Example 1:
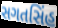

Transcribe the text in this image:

સગતસિંહ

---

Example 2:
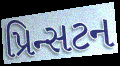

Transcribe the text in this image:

પ્રિન્સટન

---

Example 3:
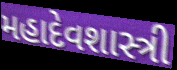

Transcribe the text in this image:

મહાદેવશાસ્ત્રી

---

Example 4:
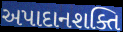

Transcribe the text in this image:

અપાદાનશક્તિ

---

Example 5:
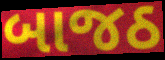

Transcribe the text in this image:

બાજઠ